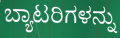
ಬ್ಯಾಟರಿಗಳನ್ನು